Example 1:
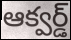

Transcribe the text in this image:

ఆక్వర్డ్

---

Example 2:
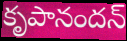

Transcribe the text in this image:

కృపానందన్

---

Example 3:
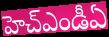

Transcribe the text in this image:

హెచ్ఎండీఏ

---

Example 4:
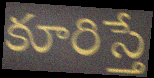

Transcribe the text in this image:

కూరిస్తే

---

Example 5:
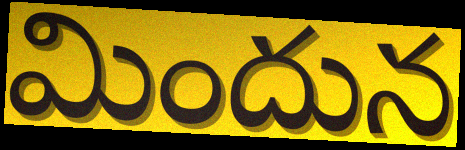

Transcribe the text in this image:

మిందున